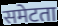
समेटता